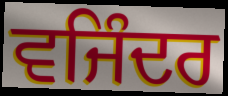
ਵਜਿੰਦਰ